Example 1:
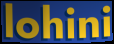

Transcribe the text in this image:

lohini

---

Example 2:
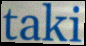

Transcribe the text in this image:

taki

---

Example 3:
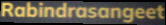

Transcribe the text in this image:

Rabindrasangeet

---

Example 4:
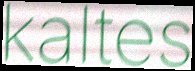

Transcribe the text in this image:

kaltes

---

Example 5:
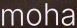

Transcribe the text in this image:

moha